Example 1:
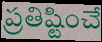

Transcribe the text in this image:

ప్రతిష్టించే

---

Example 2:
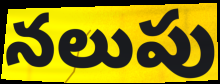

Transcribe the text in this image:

నలుపు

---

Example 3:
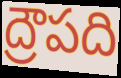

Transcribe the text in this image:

ద్రౌపది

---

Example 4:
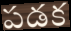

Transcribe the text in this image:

పడక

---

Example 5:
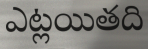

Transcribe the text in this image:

ఎట్లయితది